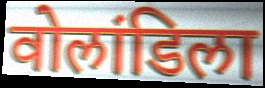
वोलांडिला